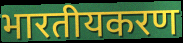
भारतीयकरण